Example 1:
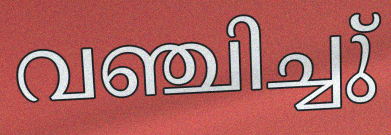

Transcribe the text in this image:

വഞ്ചിച്ചു്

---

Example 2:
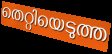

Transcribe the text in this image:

തെറ്റിയെടുത്ത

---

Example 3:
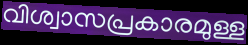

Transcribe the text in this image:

വിശ്വാസപ്രകാരമുള്ള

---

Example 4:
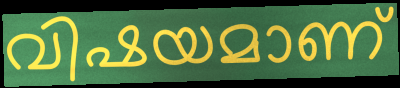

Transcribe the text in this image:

വിഷയമാണ്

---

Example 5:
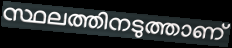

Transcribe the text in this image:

സ്ഥലത്തിനടുത്താണ്